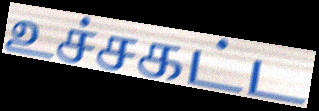
உச்சகட்ட